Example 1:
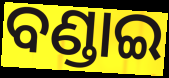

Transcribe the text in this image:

ବଣ୍ଡାଇ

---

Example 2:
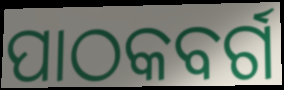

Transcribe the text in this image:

ପାଠକବର୍ଗ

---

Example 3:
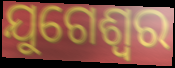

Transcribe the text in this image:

ଯୁଗେଶ୍ଵର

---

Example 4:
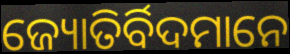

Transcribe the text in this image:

ଜ୍ୟୋତିର୍ବିଦମାନେ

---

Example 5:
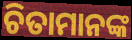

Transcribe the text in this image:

ଚିତାମାନଙ୍କ